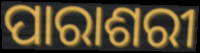
ପାରାଶରୀ